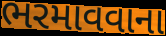
ભરમાવવાના